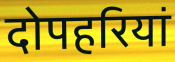
दोपहरियां